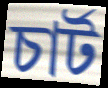
চার্ট